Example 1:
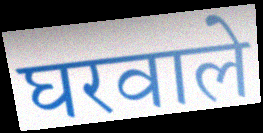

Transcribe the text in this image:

घरवाले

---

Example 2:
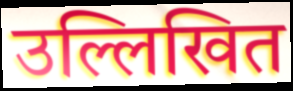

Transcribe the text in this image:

उल्लिखित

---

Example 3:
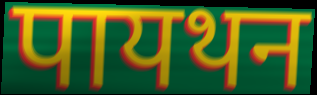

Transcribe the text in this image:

पायथन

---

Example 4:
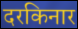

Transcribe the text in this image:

दरकिनार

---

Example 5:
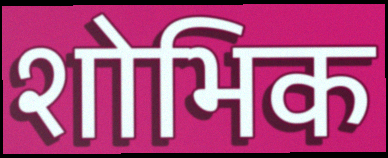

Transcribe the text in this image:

शोभिक